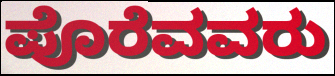
ಪೊರೆವವರು